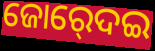
ଜୋର୍‍ଦେଇ